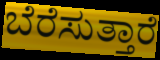
ಬೆರೆಸುತ್ತಾರೆ